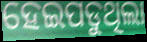
ହେଇପଡୁଥିଲା